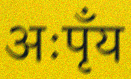
अःपृँय